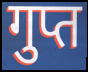
गुप्त